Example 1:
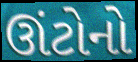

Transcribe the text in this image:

ઊંટોનો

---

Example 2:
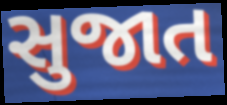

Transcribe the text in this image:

સુજાત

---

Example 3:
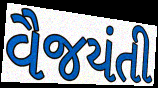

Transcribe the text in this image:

વૈજયંતી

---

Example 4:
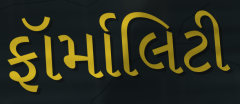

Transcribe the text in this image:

ફૉર્માલિટી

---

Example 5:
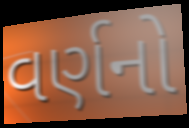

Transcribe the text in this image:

વર્ણનો